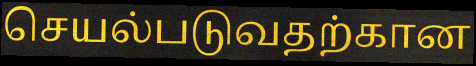
செயல்படுவதற்கான